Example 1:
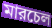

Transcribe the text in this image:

মারচেল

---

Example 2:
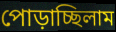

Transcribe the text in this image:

পোড়াচ্ছিলাম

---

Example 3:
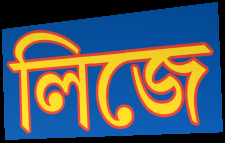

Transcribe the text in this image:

লিজে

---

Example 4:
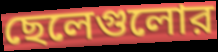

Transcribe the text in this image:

ছেলেগুলোর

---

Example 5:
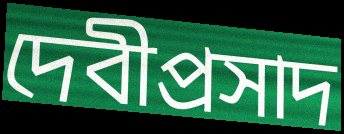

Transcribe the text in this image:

দেবীপ্রসাদ